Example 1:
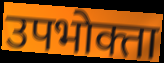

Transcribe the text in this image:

उपभोक्‍ता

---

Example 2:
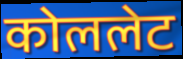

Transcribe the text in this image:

कोललेट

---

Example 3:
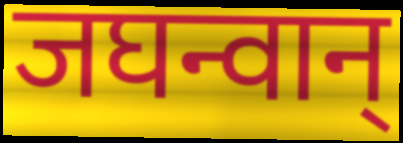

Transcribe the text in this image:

जघन्वान्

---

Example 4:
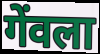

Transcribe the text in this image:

गेंवला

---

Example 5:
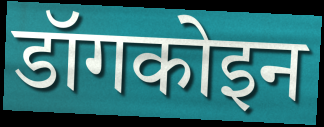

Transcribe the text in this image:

डॉगकोइन